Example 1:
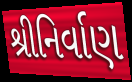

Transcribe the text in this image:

શ્રીનિર્વાણ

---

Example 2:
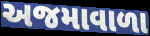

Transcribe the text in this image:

અજમાવાળા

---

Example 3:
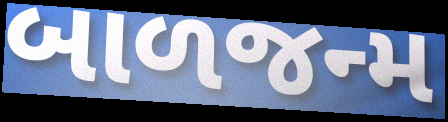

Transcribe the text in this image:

બાળજન્મ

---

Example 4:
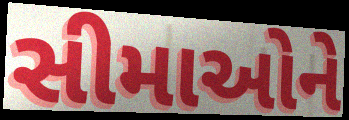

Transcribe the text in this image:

સીમાઓને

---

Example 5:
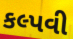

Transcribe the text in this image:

કલ્પવી